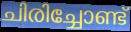
ചിരിച്ചോണ്ട്